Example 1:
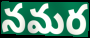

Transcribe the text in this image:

నమర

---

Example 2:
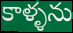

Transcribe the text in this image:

కాళ్ళను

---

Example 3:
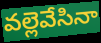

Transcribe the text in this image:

వల్లెవేసినా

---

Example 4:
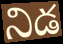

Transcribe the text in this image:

నిడ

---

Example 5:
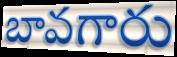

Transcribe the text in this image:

బావగారు